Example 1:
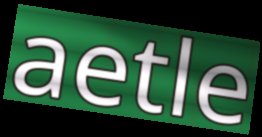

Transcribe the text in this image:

aetle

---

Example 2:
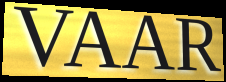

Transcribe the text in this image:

VAAR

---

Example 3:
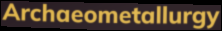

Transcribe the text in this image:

Archaeometallurgy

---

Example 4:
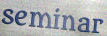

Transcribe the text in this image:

seminar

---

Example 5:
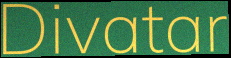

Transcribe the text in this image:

Divatar